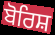
ਬੋਰਿਸ਼